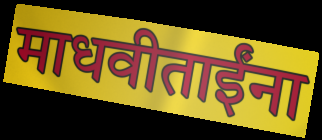
माधवीताईंना